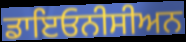
ਡਾਇਓਨੀਸੀਅਨ